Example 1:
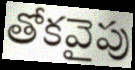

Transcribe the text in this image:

తోకవైపు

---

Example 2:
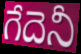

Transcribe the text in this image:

గేదెనీ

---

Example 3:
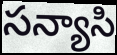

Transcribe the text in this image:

సన్యాసి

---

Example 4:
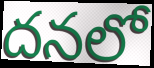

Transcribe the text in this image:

దనలో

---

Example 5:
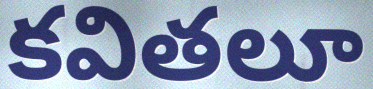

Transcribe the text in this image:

కవితలూ